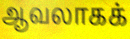
ஆவலாகக்